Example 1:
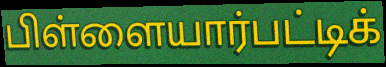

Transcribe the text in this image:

பிள்ளையார்பட்டிக்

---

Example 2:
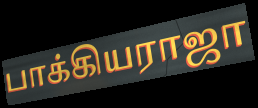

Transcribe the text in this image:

பாக்கியராஜா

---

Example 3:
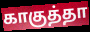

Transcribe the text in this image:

காகுத்தா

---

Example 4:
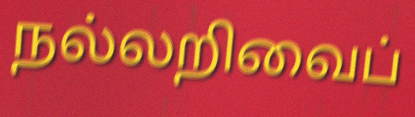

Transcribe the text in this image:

நல்லறிவைப்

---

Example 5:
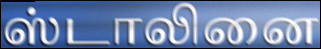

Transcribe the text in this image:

ஸ்டாலினை